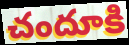
చందూకి